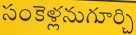
సంకెళ్లనుగూర్చి